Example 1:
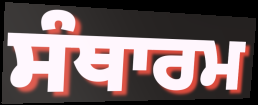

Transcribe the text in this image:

ਸੰਥਾਰਮ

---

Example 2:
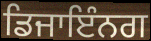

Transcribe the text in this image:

ਡਿਜਾਇੰਨਗ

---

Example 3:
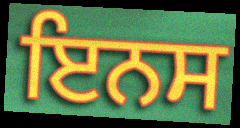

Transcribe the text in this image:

ਇਨਸ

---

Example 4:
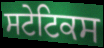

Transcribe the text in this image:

ਸਟੇਟਿਕਸ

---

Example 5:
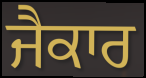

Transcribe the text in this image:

ਜੈਕਾਰ